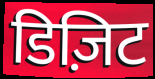
डिज़िट